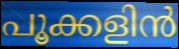
പൂക്കളിൻ